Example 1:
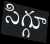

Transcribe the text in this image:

సిగ్గూ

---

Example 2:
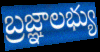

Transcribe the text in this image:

బ్రజ్ఞాలభ్యు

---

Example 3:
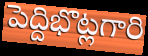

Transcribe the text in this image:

పెద్దిభొట్లగారి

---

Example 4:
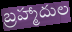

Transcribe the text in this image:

బ్రహ్మాదుల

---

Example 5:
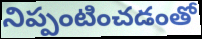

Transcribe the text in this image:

నిప్పంటించడంతో